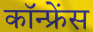
कॉन्फ्रेंस